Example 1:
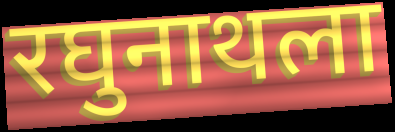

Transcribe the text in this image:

रघुनाथला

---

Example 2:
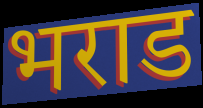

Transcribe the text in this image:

भराड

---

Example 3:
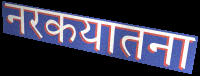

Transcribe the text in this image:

नरकयातना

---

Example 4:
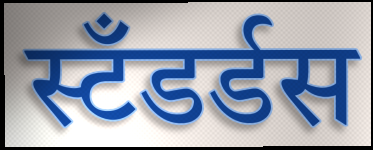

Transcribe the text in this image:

स्टँडर्डस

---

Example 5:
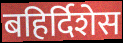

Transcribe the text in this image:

बहिर्दिशेस